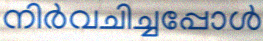
നിർവചിച്ചപ്പോൾ